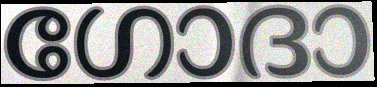
ഗോദാ